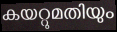
കയറ്റുമതിയും